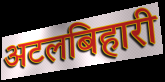
अटलबिहारी